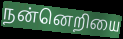
நன்னெறியை